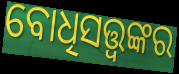
ବୋଧିସତ୍ତ୍ଵଙ୍କର